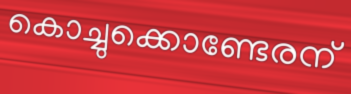
കൊച്ചുക്കൊണ്ടേരന്